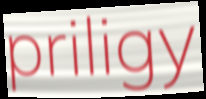
priligy